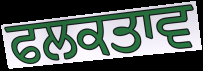
ਫਲਕਤਾਵ